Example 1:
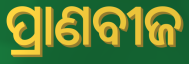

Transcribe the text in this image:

ପ୍ରାଣବୀଜ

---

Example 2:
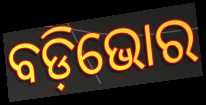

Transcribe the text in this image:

ବଡ଼ିଭୋର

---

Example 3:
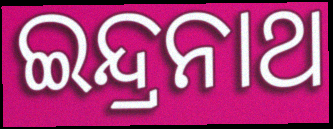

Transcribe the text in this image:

ଇନ୍ଦ୍ରନାଥ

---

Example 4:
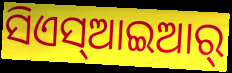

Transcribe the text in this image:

ସିଏସ୍ଆଇଆର୍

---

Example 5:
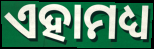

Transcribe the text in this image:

ଏହାମଧ୍ୟ